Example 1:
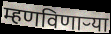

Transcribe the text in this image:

म्हणविणाऱ्या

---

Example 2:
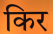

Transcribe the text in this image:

किर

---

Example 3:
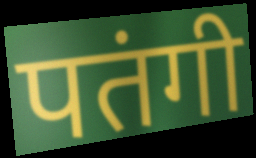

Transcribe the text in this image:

पतंगी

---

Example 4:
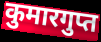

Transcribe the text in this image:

कुमारगुप्त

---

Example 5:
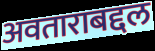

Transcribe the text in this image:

अवताराबद्दल